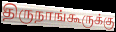
திருநாங்கூருக்கு